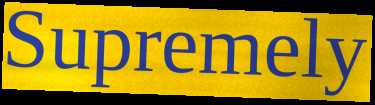
Supremely